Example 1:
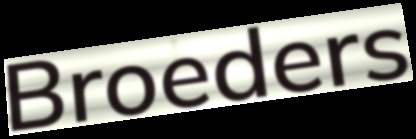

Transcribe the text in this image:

Broeders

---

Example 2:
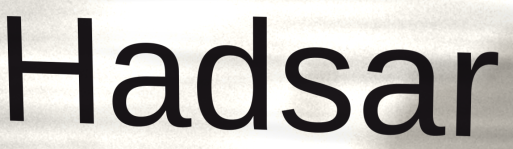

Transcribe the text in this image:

Hadsar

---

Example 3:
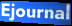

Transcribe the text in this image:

Ejournal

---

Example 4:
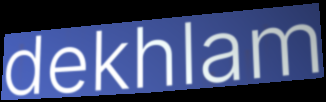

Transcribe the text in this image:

dekhlam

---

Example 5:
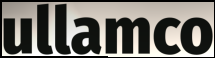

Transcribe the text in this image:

ullamco